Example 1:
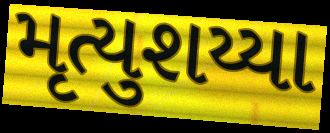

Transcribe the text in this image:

મૃત્યુશય્યા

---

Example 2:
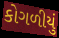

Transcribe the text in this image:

કોગળીયું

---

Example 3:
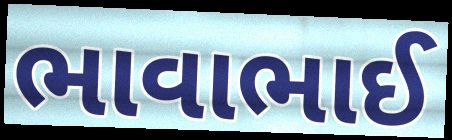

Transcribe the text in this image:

ભાવાભાઈ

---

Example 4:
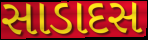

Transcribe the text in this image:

સાડાદસ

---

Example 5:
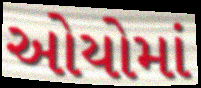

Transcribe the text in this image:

ઓયોમાં